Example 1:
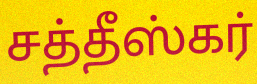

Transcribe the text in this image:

சத்தீஸ்கர்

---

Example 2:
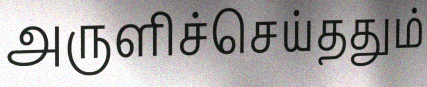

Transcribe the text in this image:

அருளிச்செய்ததும்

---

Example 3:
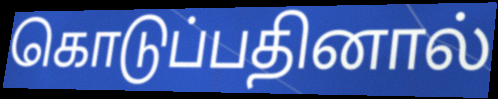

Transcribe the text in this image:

கொடுப்பதினால்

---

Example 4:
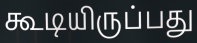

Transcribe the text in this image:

கூடியிருப்பது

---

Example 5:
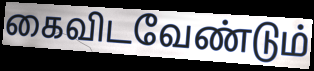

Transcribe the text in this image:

கைவிடவேண்டும்